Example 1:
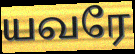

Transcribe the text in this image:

யவரே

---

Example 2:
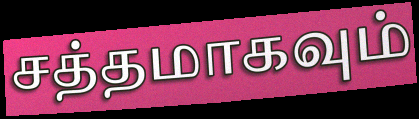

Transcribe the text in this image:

சத்தமாகவும்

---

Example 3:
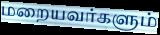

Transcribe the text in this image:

மறையவர்களும்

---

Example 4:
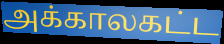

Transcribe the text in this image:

அக்காலகட்ட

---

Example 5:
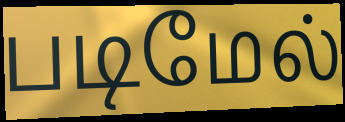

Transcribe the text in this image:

படிமேல்